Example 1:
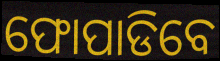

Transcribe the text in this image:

ଫୋପାଡିବେ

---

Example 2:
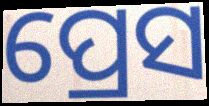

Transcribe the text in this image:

ପ୍ରେସ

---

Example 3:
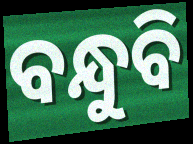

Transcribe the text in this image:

ବନ୍ଧୁବି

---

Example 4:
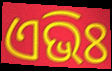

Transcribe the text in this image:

ଏଭିଃ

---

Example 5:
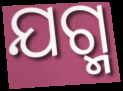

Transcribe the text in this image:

ଯଗ୍ମ